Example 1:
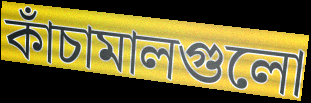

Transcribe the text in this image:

কাঁচামালগুলো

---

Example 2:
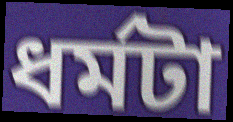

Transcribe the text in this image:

ধর্মটা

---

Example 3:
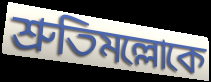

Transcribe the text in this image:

শ্রুতিমল্লোকে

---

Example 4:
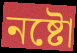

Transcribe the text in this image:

নষ্টো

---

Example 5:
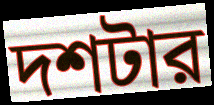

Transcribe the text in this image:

দশটার